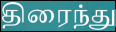
திரைந்து